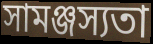
সামঞ্জস্যতা